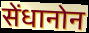
सेंधानोन